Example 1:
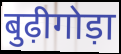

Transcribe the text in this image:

बुढ़ीगोड़ा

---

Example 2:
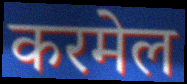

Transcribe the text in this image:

करमेल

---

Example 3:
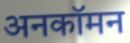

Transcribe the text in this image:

अनकॉमन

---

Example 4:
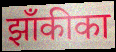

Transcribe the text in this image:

झाँकीका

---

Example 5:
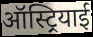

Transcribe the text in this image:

ऑस्ट्रियाई